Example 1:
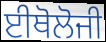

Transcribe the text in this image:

ਈਥੋਲੋਜੀ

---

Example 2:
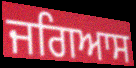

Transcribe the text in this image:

ਜਗਿਆਸ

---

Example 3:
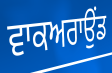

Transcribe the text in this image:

ਵਾਕਅਰਾਉਂਡ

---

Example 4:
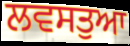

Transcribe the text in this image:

ਲਵਸਤੁਆ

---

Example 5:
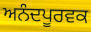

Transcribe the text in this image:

ਅਨੰਦਪੂਰਵਕ